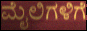
ಮೈಲಿಗಳಿಗೆ